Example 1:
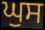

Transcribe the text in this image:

ਘੁਸ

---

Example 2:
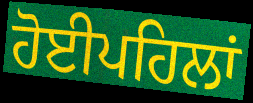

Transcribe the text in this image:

ਹੋਈਪਹਿਲਾਂ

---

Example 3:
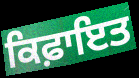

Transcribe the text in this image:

ਕਿਫ਼ਾਇਤ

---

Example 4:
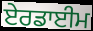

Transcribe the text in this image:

ਏਰਡਾਈਮ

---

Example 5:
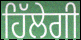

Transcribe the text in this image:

ਹਿੱਲੇਗੀ